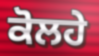
ਕੋਲਹੇ